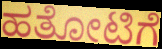
ಹತೋಟಿಗೆ